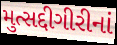
મુત્સદ્દીગીરીનાં